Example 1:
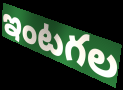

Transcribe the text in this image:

ఇంటగల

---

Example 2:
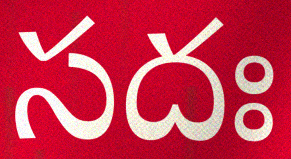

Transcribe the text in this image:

సదః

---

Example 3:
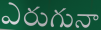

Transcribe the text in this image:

ఎరుగునా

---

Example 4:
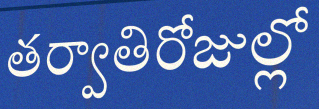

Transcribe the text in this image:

తర్వాతిరోజుల్లో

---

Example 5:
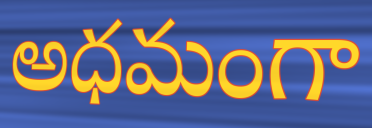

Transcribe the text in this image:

అధమంగా